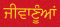
ਜੀਵਾਣੂੰਆਂ